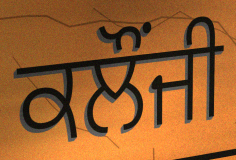
ਕਲੌਂਜੀ